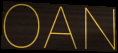
OAN